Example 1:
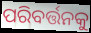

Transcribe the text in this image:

ପରିବର୍ତ୍ତନକୁ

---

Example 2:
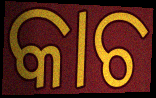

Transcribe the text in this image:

କାଚ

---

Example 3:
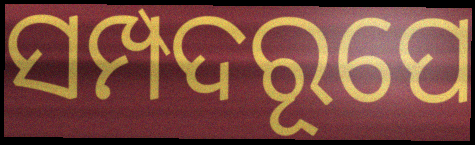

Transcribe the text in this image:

ସମ୍ପଦରୂପେ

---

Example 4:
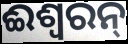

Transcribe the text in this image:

ଈଶ୍ୱରନ୍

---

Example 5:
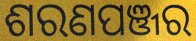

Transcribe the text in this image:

ଶରଣପଞ୍ଜର